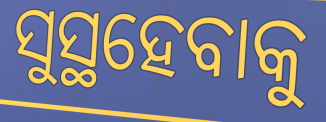
ସୁସ୍ଥହେବାକୁ